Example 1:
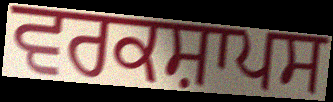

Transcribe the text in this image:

ਵਰਕਸ਼ਾਪਸ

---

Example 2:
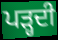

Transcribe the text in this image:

ਪਡ਼੍ਹਦੀ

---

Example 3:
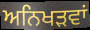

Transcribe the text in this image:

ਅਨਿਖੜਵਾਂ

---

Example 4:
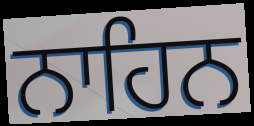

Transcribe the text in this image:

ਨਾਹਿਨ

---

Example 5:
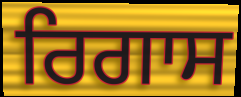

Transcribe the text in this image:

ਰਿਗਾਸ